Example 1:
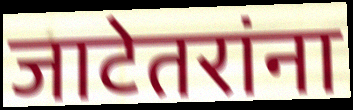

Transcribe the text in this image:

जाटेतरांना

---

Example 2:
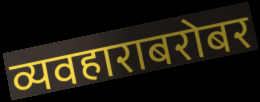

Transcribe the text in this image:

व्यवहाराबरोबर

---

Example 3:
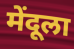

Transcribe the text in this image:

मेंदूला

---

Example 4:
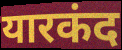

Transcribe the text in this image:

यारकंद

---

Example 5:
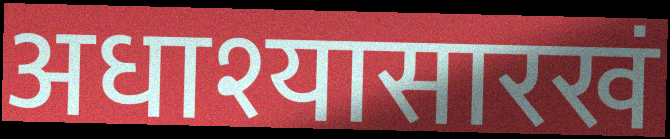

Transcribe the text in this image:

अधाश्यासारखं